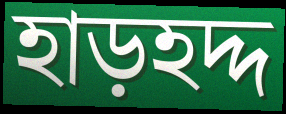
হাড়হদ্দ